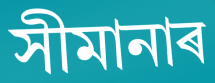
সীমানাৰ